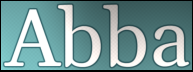
Abba